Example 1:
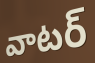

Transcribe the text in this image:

వాటర్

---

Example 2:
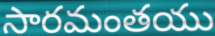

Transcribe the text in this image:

సారమంతయు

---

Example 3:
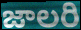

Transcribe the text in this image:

జాలరి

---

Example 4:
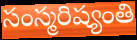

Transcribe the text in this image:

సంస్మరిష్యంతి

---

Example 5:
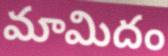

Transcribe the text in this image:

మామిదం